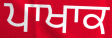
ਪਾਖਾਕ